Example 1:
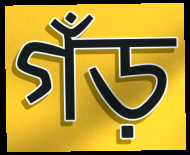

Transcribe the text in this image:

গঁড়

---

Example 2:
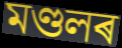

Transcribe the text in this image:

মণ্ডলৰ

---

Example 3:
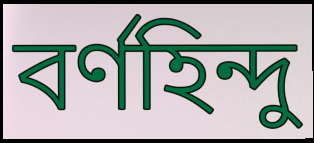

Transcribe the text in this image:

বৰ্ণহিন্দু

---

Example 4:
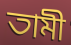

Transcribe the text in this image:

তামী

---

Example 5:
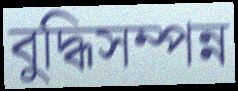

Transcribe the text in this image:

বুদ্ধিসম্পন্ন